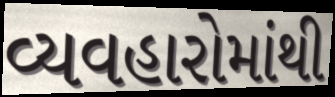
વ્યવહારોમાંથી